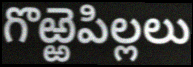
గొఱ్ఱెపిల్లలు